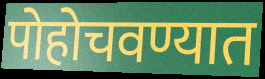
पोहोचवण्यात